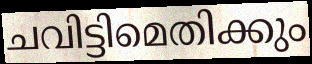
ചവിട്ടിമെതിക്കും